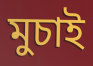
মুচাই